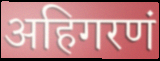
अहिगरणं